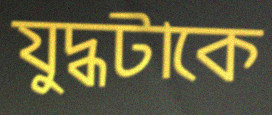
যুদ্ধটাকে